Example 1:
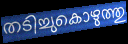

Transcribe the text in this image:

തടിച്ചുകൊഴുത്തു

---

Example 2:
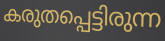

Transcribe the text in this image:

കരുതപ്പെട്ടിരുന്ന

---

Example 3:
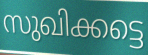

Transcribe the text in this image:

സുഖിക്കട്ടെ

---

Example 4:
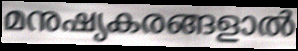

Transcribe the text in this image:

മനുഷ്യകരങ്ങളാൽ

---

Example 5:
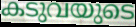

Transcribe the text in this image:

കടുവയുടെ